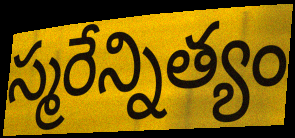
స్మరేన్నిత్యం